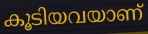
കൂടിയവയാണ്